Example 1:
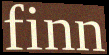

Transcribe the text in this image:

finn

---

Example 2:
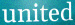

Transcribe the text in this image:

united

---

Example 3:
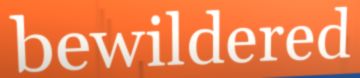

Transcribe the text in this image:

bewildered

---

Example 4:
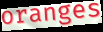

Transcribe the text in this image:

oranges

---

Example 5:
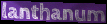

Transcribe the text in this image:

lanthanum